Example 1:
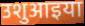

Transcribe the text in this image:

उशुआइया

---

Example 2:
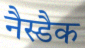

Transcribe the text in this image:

नैस्डैक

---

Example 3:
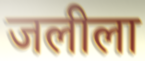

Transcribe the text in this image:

जलीला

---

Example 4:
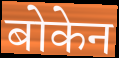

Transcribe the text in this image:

बोकेन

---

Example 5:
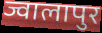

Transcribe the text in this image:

ज्वालापुर